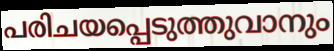
പരിചയപ്പെടുത്തുവാനും